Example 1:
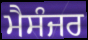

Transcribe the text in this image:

ਮੈਸੰਜਰ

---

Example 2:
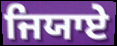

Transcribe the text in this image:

ਜਿਯਾਏ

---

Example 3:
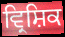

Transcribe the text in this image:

ਵ੍ਰਿਸ਼ਿਕ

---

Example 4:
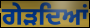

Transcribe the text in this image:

ਗੇੜਦਿਆਂ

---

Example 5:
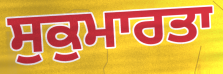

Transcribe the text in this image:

ਸੁਕੁਮਾਰਤਾ